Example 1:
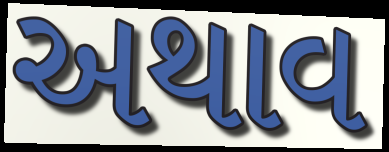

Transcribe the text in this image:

અથાવ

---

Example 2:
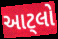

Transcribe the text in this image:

આટ્લો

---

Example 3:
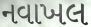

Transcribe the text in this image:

નવાખલ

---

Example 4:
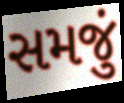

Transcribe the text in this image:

સમજું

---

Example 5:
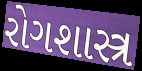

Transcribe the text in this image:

રોગશાસ્ત્ર